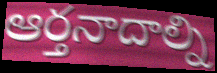
ఆర్తనాదాల్ని